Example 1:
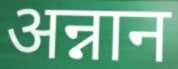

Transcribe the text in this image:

अन्नान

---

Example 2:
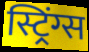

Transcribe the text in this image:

स्ट्रिंग्स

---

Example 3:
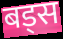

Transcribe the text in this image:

बड्स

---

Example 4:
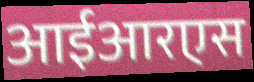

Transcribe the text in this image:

आईआरएस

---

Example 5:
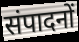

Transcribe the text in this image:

संपादनों